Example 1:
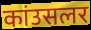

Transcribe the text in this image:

कांउसलर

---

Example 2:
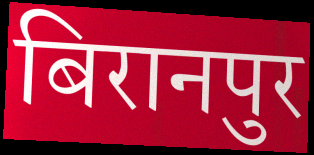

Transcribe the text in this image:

बिरानपुर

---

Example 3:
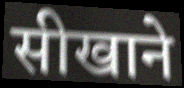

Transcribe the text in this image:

सीखाने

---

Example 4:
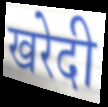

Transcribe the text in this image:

खरेदी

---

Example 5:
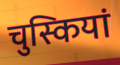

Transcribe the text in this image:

चुस्कियां